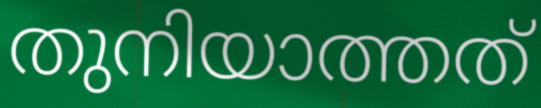
തുനിയാത്തത്